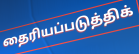
தைரியப்படுத்திக்